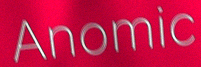
Anomic